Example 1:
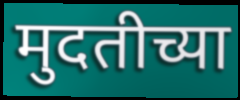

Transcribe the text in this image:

मुदतीच्या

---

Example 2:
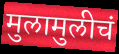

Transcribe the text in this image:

मुलामुलीचं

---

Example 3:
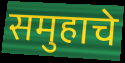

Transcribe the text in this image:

समुहाचे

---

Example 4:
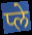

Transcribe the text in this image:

प्ले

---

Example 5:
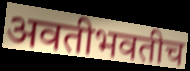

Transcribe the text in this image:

अवतीभवतीच